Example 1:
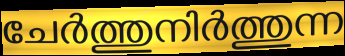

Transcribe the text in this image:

ചേർത്തുനിർത്തുന്ന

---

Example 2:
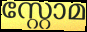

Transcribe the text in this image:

സ്റ്റോമ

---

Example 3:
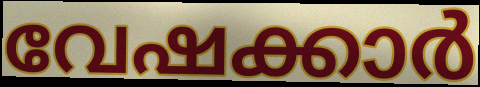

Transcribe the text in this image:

വേഷക്കാർ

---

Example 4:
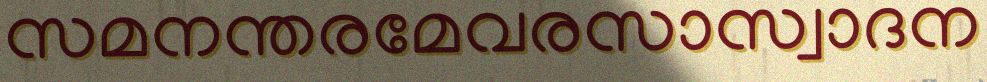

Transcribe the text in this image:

സമനന്തരമേവരസാസ്വാദന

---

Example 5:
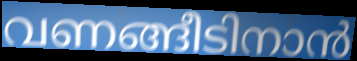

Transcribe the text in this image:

വണങ്ങീടിനാൻ